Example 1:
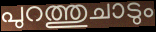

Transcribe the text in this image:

പുറത്തുചാടും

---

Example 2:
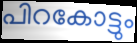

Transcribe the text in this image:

പിറകോട്ടും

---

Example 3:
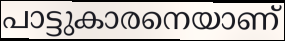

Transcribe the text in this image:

പാട്ടുകാരനെയാണ്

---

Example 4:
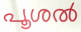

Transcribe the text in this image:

പൂശൽ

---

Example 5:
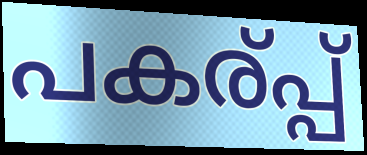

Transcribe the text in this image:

പകര്പ്പ്